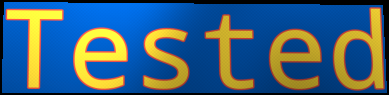
Tested